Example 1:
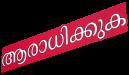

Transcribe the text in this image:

ആരാധിക്കുക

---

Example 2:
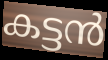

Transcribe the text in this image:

കട്ടൻ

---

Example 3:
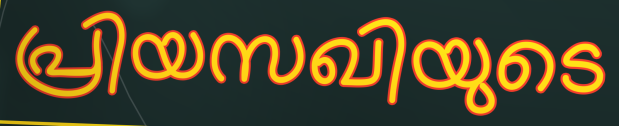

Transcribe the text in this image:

പ്രിയസഖിയുടെ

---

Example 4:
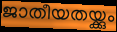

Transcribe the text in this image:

ജാതീയതയ്ക്കും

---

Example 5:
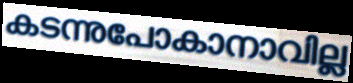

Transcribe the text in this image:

കടന്നുപോകാനാവില്ല